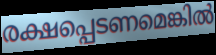
രക്ഷപ്പെടണമെങ്കിൽ